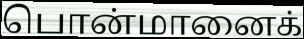
பொன்மானைக்